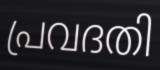
പ്രവദതി